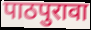
पाठपुरावा